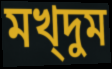
মখ্দুম